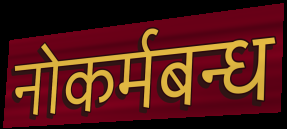
नोकर्मबन्ध